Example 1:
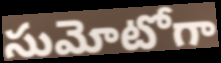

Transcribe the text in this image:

సుమోటోగా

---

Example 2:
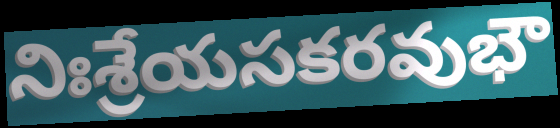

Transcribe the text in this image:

నిఃశ్రేయసకరవుభౌ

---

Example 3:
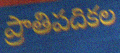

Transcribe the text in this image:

ప్రాతిపదికల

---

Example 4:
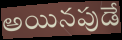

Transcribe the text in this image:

అయినపుడే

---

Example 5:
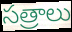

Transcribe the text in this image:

సత్రాలు